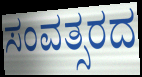
ಸಂವತ್ಸರದ